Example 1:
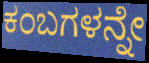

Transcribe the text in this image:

ಕಂಬಗಳನ್ನೇ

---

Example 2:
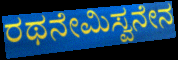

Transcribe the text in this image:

ರಥನೇಮಿಸ್ವನೇನ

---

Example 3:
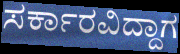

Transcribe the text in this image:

ಸರ್ಕಾರವಿದ್ದಾಗ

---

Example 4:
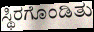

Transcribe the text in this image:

ಸ್ಥಿರಗೊಂಡಿತು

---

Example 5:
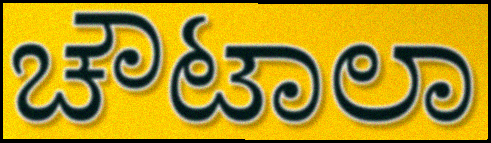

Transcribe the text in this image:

ಚೌಟಾಲಾ